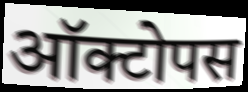
ऑक्टोपस